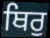
ਥਿਰੁ